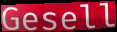
Gesell